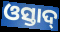
ଓସ୍ତାଦ୍